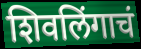
शिवलिंगाचं